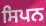
ਸਿਪਨ